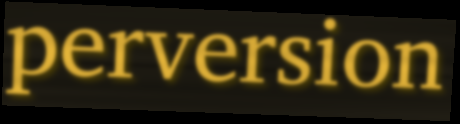
perversion